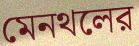
মেনথলের